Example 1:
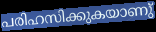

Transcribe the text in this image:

പരിഹസിക്കുകയാണു്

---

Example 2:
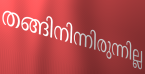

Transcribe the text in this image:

തങ്ങിനിന്നിരുന്നില്ല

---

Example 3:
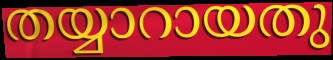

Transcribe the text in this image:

തയ്യാറായതു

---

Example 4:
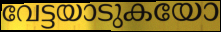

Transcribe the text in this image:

വേട്ടയാടുകയോ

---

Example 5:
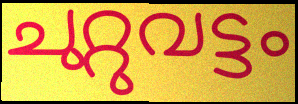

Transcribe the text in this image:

ചുറ്റുവട്ടം